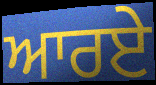
ਆਰਏ